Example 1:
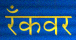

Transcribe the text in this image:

रँकवर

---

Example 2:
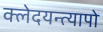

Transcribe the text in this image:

क्लेदयन्त्यापो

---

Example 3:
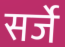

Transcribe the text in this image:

सर्जे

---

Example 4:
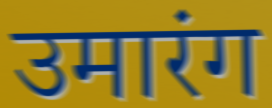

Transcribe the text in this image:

उमारंग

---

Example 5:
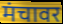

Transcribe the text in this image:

मंचावर